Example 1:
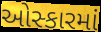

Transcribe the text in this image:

ઓસ્કારમાં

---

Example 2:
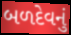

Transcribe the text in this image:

બળદેવનું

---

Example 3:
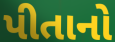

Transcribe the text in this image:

પીતાનો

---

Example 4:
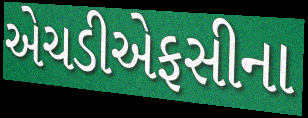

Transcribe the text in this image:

એચડીએફસીના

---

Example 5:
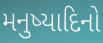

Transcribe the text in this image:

મનુષ્યાદિનો